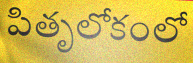
పితృలోకంలో